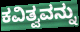
ಕವಿತ್ವವನ್ನು